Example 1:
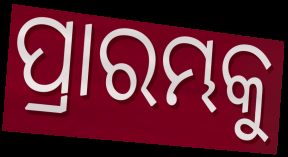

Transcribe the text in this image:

ପ୍ରାରମ୍ଭକୁ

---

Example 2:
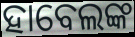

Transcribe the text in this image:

ହାବେଲଙ୍କ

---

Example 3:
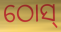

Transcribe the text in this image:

ଠୋସ୍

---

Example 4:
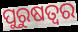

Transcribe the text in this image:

ପୁରୁଷତ୍ଵର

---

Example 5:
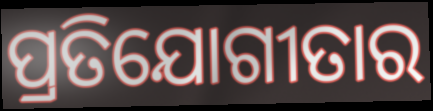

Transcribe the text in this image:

ପ୍ରତିଯୋଗୀତାର